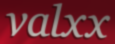
valxx